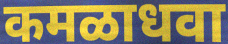
कमळाधवा